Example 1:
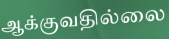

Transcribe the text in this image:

ஆக்குவதில்லை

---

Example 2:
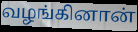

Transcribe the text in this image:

வழங்கினான்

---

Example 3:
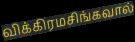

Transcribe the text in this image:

விக்கிரமசிங்கவால்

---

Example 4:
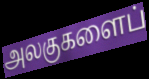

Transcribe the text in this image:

அலகுகளைப்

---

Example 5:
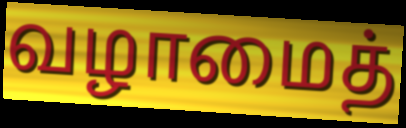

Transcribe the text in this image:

வழாமைத்